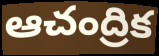
ఆచంద్రిక